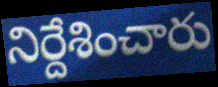
నిర్దేశించారు